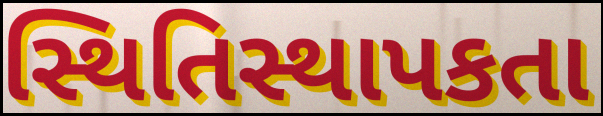
સ્થિતિસ્થાપકતા